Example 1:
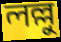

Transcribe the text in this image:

লল্লু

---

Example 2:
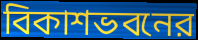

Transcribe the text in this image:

বিকাশভবনের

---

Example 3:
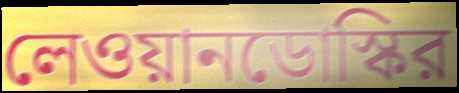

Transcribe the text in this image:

লেওয়ানডোস্কির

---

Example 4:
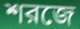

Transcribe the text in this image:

শরজে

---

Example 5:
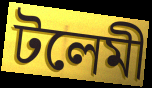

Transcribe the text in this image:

টলেমী